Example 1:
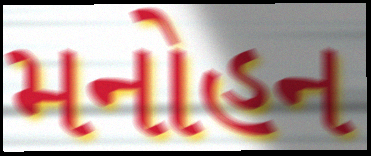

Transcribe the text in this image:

મનોહન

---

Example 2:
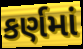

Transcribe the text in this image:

કર્ણમાં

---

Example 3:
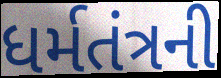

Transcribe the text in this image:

ધર્મતંત્રની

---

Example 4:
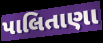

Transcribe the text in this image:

પાલિતાણા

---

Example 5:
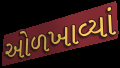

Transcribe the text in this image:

ઓળખાવ્યાં